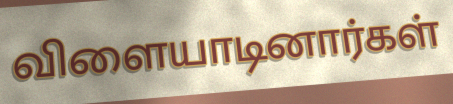
விளையாடினார்கள்